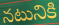
నటునికి